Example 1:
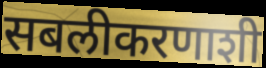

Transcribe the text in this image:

सबलीकरणाशी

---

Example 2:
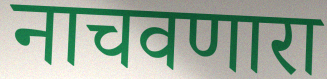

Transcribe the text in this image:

नाचवणारा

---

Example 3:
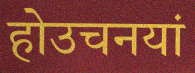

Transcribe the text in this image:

होउचनयां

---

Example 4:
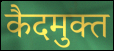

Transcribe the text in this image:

कैदमुक्त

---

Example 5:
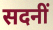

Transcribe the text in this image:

सदनीं